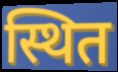
स्थित